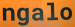
ngalo